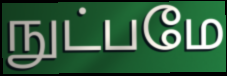
நுட்பமே